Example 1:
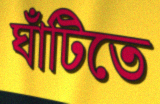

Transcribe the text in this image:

ঘাঁটিতে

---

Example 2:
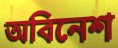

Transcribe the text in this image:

অবিনেশ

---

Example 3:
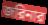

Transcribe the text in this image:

জরিনার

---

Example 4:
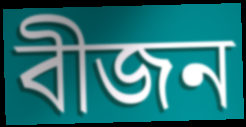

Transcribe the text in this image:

বীজন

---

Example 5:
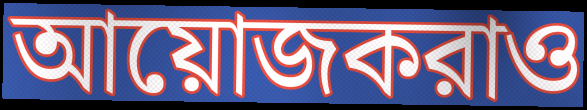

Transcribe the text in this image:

আয়োজকরাও